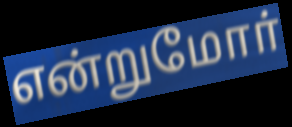
என்றுமோர்